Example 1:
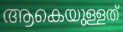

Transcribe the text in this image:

ആകെയുള്ളത്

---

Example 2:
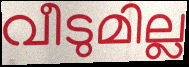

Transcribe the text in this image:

വീടുമില്ല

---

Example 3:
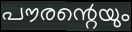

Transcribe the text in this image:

പൗരന്റെയും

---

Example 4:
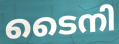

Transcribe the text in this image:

ടൈനി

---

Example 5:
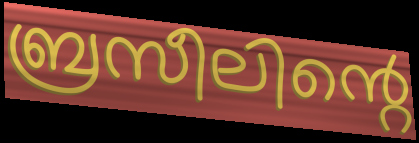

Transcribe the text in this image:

ബ്രസീലിന്റെ